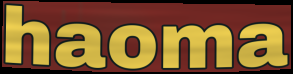
haoma